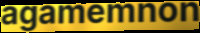
agamemnon